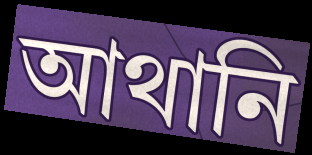
আথানি